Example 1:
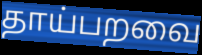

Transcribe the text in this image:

தாய்பறவை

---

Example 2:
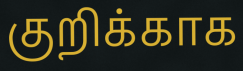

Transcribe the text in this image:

குறிக்காக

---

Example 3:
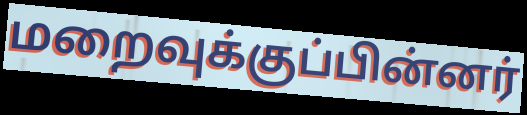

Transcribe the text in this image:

மறைவுக்குப்பின்னர்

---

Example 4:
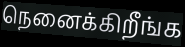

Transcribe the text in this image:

நெனைக்கிறீங்க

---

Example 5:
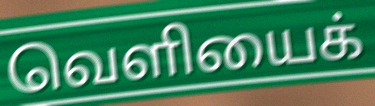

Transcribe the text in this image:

வெளியைக்